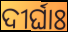
ଦୀର୍ଘାଃ